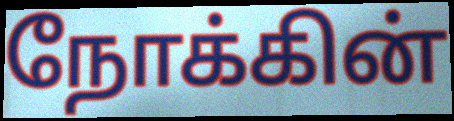
நோக்கின்